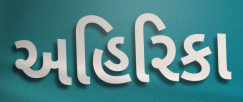
અહિરિકા